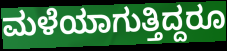
ಮಳೆಯಾಗುತ್ತಿದ್ದರೂ